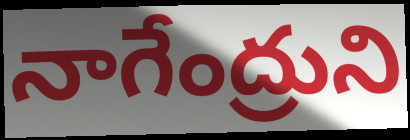
నాగేంద్రుని